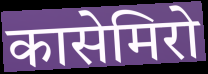
कासेमिरो